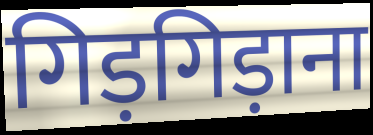
गिड़गिड़ाना